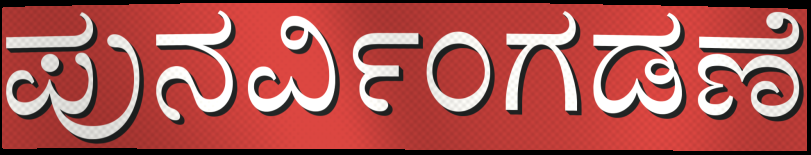
ಪುನರ್ವಿಂಗಡಣೆ